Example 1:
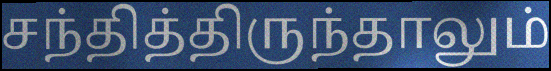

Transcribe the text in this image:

சந்தித்திருந்தாலும்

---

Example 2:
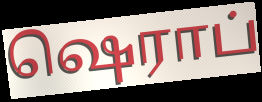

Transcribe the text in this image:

ஷெராப்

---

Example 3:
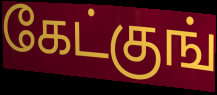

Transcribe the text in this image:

கேட்குங்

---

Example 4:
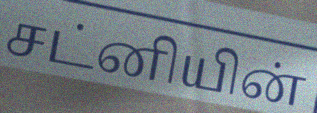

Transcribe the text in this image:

சட்னியின்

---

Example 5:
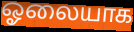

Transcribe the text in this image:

ஓலையாக